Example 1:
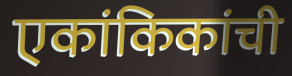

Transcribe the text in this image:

एकांकिकांची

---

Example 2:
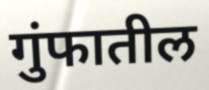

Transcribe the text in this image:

गुंफातील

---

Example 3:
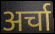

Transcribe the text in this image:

अर्चा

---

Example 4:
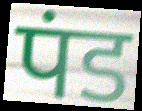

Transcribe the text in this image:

पंड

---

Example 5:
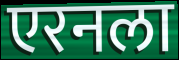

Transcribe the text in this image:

एरनला